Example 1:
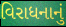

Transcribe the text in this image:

વિરાધનાનું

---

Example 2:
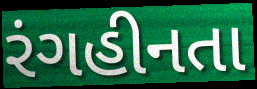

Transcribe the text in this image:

રંગહીનતા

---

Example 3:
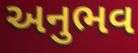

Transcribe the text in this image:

અનુભવ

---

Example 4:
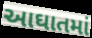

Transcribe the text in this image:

આઘાતમાં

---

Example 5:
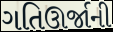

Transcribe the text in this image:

ગતિઊર્જાની